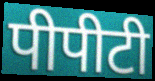
पीपीटी